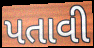
પતાવી